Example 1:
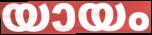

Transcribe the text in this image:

യായം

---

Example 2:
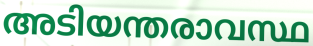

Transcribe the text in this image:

അടിയന്തരാവസ്ഥ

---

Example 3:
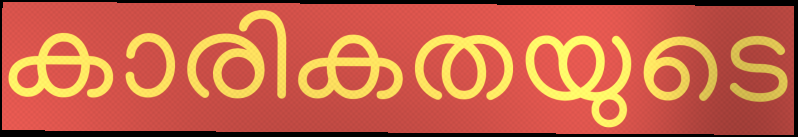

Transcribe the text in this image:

കാരികതയുടെ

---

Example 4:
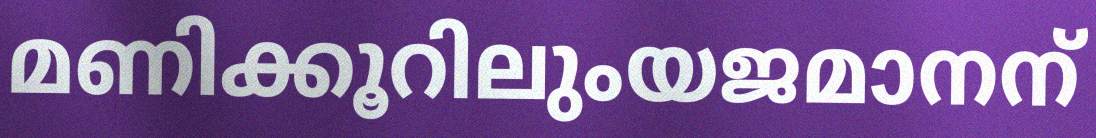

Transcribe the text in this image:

മണിക്കൂറിലുംയജമാനന്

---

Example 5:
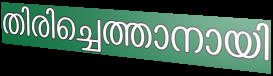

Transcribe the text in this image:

തിരിച്ചെത്താനായി